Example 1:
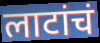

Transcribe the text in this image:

लाटांचं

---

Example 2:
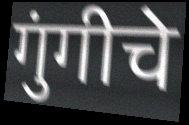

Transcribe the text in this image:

गुंगीचे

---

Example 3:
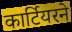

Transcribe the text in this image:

कार्टियरने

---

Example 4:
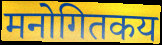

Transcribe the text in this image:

मनोगितकय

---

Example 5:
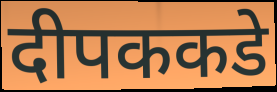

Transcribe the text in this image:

दीपककडे